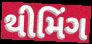
થીમિંગ